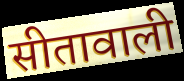
सीतावाली